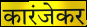
कारंजेकर